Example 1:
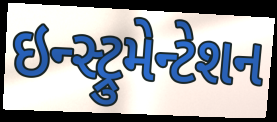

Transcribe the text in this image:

ઇન્સ્ટ્રુમેન્ટેશન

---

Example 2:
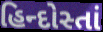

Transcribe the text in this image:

હિન્દોસ્તાં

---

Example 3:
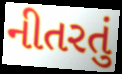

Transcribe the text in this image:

નીતરતું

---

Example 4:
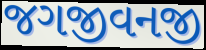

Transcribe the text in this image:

જગજીવનજી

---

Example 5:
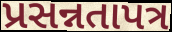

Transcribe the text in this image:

પ્રસન્નતાપત્ર